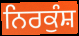
ਨਿਰਕੁੰਸ਼